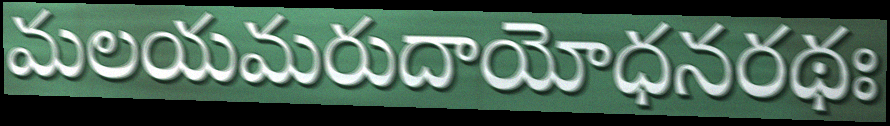
మలయమరుదాయోధనరథః